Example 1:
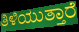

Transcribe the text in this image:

ತಿಳಿಯುತ್ತಾರೆ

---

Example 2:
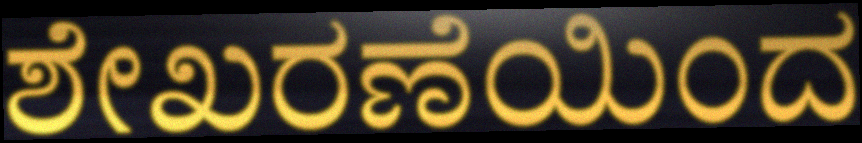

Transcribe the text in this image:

ಶೇಖರಣೆಯಿಂದ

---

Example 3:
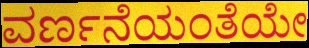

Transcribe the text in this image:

ವರ್ಣನೆಯಂತೆಯೇ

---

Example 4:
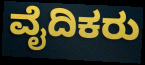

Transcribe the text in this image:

ವೈದಿಕರು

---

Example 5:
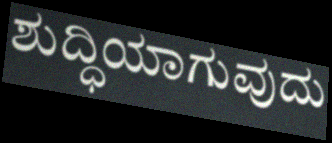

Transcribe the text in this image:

ಶುದ್ಧಿಯಾಗುವುದು